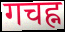
गचह्न